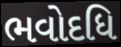
ભવોદધિ